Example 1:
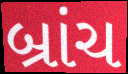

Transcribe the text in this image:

બ્રાંચ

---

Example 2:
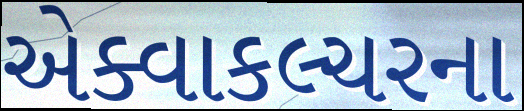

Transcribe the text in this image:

એક્વાકલ્ચરના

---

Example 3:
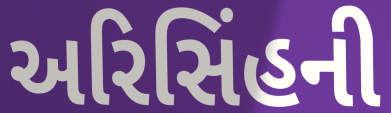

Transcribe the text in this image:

અરિસિંહની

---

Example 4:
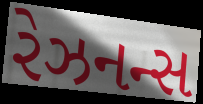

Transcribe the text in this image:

રેઝનન્સ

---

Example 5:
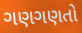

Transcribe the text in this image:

ગણગણતો